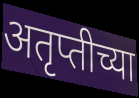
अतृप्तीच्या